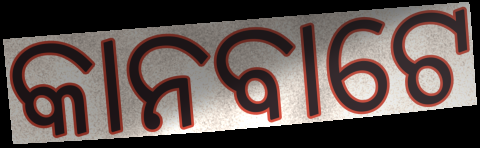
କାନବାଟେ